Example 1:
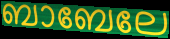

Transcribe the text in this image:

ബാബേലേ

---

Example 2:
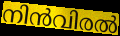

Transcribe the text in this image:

നിൻവിരൽ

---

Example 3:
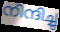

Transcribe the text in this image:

നിന്ദിച്ചു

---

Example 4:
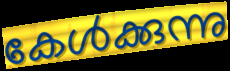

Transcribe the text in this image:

കേൾക്കുന്നു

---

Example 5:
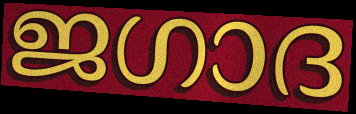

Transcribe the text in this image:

ജഗാദ